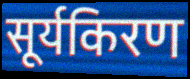
सूर्यकिरण